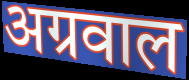
अग्रवाल